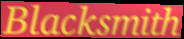
Blacksmith